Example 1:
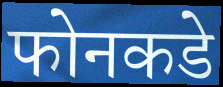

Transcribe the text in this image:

फोनकडे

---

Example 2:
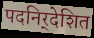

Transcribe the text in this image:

पदनिर्देशित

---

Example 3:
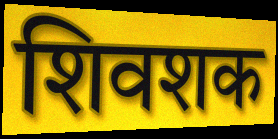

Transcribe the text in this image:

शिवशक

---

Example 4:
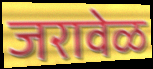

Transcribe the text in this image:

जरावेळ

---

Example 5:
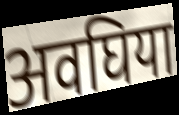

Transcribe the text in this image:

अवघिया